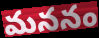
మననం